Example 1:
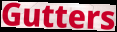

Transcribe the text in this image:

Gutters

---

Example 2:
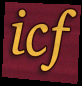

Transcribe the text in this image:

icf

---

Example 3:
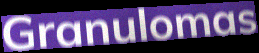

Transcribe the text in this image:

Granulomas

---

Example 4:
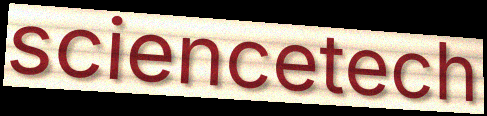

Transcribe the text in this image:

sciencetech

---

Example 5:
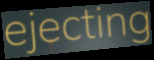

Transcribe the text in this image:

ejecting